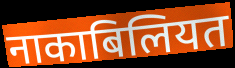
नाकाबिलियत